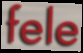
fele